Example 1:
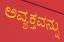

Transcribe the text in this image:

ಅವ್ಯಕ್ತವನ್ನು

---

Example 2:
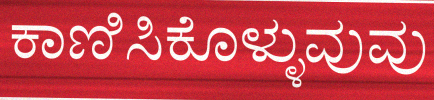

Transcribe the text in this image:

ಕಾಣಿಸಿಕೊಳ್ಳುವುವು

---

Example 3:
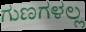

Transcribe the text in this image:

ಗುಣಗಳಲ್ಲ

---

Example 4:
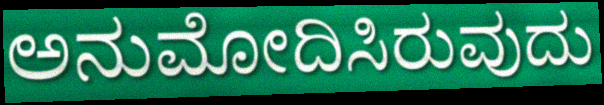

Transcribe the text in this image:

ಅನುಮೋದಿಸಿರುವುದು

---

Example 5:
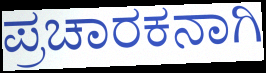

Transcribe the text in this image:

ಪ್ರಚಾರಕನಾಗಿ